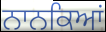
ਨਾਨਕਿਆਂ